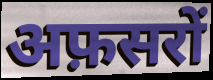
अफ़सरों